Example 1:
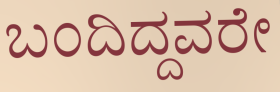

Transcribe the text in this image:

ಬಂದಿದ್ದವರೇ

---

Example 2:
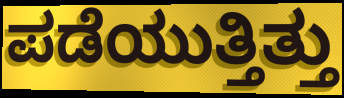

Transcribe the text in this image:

ಪಡೆಯುತ್ತಿತ್ತು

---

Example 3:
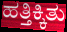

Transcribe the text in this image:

ಹತ್ತಿಕ್ಕಿತು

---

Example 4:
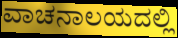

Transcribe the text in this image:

ವಾಚನಾಲಯದಲ್ಲಿ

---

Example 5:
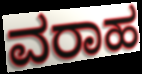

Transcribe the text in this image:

ವರಾಹ